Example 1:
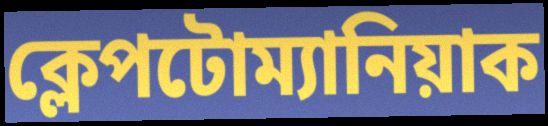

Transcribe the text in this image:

ক্লেপটোম্যানিয়াক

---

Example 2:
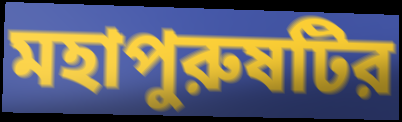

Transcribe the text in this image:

মহাপুরুষটির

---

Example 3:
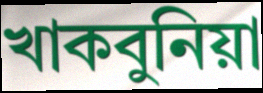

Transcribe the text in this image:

খাকবুনিয়া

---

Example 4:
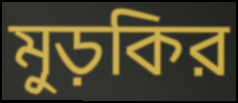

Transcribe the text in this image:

মুড়কির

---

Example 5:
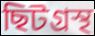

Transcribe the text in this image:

ছিটগ্রস্থ